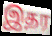
இதர